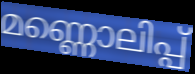
മണ്ണൊലിപ്പ്